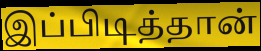
இப்பிடித்தான்